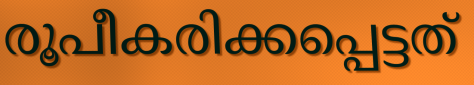
രൂപീകരിക്കപ്പെട്ടത്